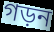
গড়ন